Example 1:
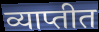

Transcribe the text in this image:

व्याप्तीत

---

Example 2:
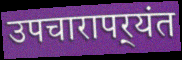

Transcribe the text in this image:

उपचारापर्यंत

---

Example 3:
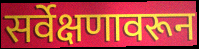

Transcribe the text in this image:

सर्वेक्षणावरून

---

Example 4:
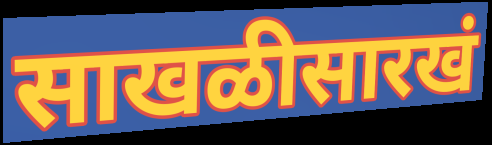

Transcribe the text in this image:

साखळीसारखं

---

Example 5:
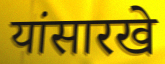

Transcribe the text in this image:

यांसारखे